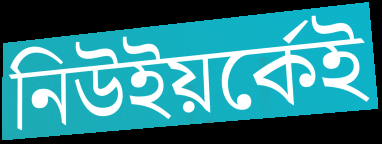
নিউইয়র্কেই